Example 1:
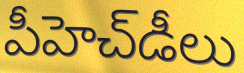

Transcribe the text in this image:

పీహెచ్‌డీలు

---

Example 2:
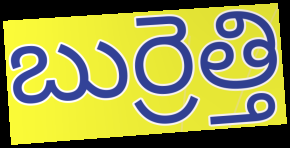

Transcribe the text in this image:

బుర్రెత్తి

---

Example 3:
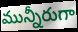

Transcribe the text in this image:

మున్నీరుగా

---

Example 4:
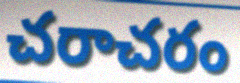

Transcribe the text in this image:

చరాచరం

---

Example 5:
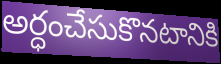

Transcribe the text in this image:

అర్ధంచేసుకొనటానికి